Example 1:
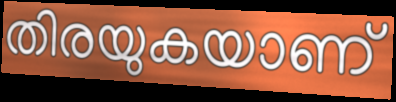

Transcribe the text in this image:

തിരയുകയാണ്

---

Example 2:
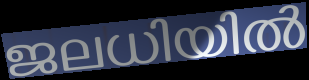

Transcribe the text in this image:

ജലധിയിൽ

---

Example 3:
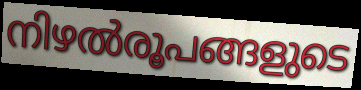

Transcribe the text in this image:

നിഴൽരൂപങ്ങളുടെ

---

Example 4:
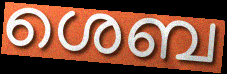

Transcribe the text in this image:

ശെബ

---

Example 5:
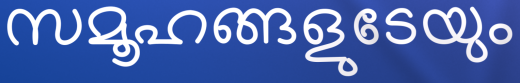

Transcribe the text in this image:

സമൂഹങ്ങളുടേയും